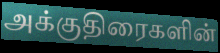
அக்குதிரைகளின்